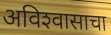
अविश्‍वासाचा